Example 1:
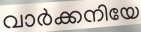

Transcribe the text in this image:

വാർക്കനിയേ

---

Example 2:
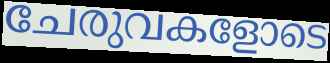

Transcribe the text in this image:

ചേരുവകളോടെ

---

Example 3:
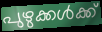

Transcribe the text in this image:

പുഴുക്കൾക്ക്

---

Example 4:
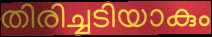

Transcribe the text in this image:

തിരിച്ചടിയാകും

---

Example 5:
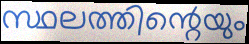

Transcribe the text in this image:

സ്ഥലത്തിന്റെയും